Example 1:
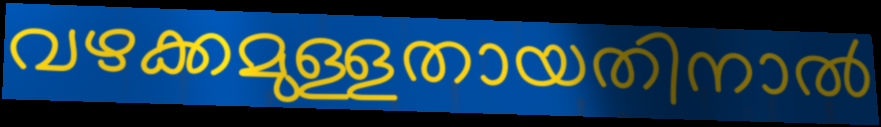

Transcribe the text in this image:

വഴക്കമുള്ളതായതിനാൽ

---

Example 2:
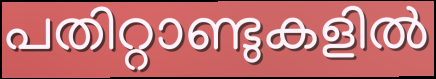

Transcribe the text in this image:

പതിറ്റാണ്ടുകളിൽ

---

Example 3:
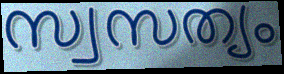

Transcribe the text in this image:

സ്വസത്യം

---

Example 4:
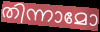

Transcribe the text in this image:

തിന്നാമോ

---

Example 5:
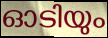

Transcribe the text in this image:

ഓടിയും